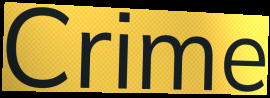
Crime